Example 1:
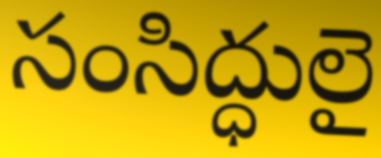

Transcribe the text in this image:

సంసిద్ధులై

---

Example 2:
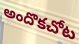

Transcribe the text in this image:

అందొకచోట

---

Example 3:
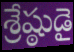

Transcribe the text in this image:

శ్రేష్ఠుడై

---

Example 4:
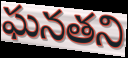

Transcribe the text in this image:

ఘనతని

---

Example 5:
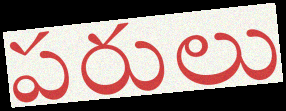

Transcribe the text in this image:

పరులు